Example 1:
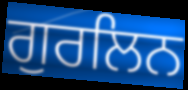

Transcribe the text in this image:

ਗੁਰਲਿਨ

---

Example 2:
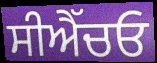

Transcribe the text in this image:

ਸੀਐੱਚਓ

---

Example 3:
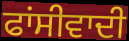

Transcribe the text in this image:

ਫਾਂਸੀਵਾਦੀ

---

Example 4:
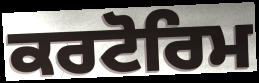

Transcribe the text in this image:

ਕਰਟੋਰਿਮ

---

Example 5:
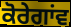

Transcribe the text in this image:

ਕੋਰੇਗਾਂਵ